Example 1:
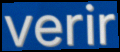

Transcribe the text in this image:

verir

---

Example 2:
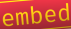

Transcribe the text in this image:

embed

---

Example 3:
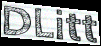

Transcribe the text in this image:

DLitt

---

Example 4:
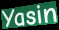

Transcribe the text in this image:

Yasin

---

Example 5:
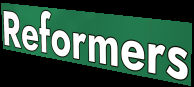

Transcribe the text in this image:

Reformers